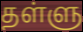
தள்ளு